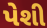
પેશી